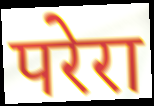
परेरा